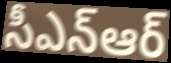
సీఎన్ఆర్